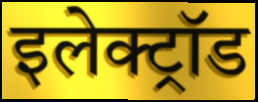
इलेक्ट्रॉड